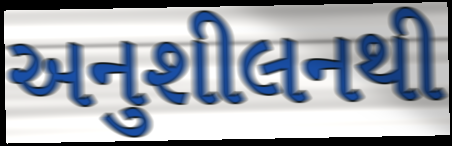
અનુશીલનથી